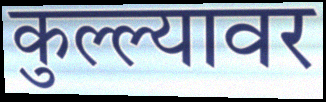
कुल्ल्यावर